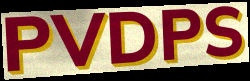
PVDPS